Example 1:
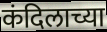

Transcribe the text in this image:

कंदिलाच्या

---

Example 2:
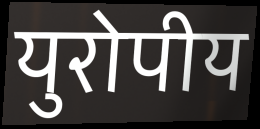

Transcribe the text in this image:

युरोपीय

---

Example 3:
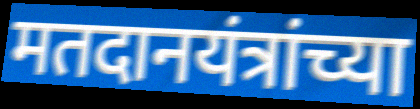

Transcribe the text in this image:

मतदानयंत्रांच्या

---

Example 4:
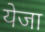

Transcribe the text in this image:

येजा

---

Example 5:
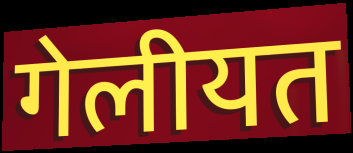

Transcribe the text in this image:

गेलीयत